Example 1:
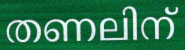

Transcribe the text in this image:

തണലിന്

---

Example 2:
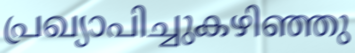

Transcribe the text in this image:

പ്രഖ്യാപിച്ചുകഴിഞ്ഞു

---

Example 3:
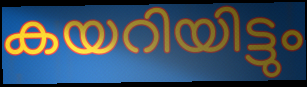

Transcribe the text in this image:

കയറിയിട്ടും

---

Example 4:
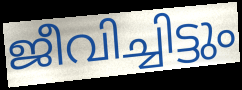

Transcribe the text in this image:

ജീവിച്ചിട്ടും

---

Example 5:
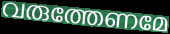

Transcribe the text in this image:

വരുത്തേണമേ